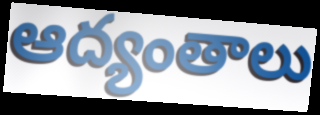
ఆద్యంతాలు